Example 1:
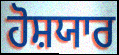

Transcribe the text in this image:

ਹੋਸ਼ਯਾਰ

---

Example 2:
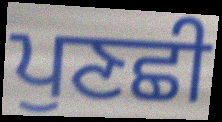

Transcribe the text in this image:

ਪੁਣਛੀ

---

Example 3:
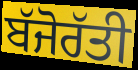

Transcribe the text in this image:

ਬੱਜੋਰੱਤੀ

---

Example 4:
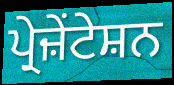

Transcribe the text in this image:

ਪ੍ਰੇਜ਼ੇਂਟੇਸ਼ਨ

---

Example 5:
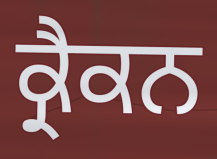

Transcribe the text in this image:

ਕ੍ਰੈਕਨ